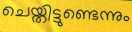
ചെയ്തിട്ടുണ്ടെന്നും